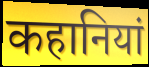
कहानियां